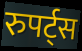
रुपर्ट्स